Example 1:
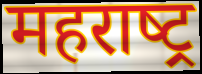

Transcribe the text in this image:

महराष्‍ट्र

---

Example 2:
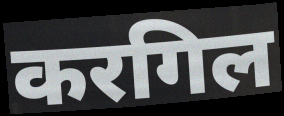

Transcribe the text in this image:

करगिल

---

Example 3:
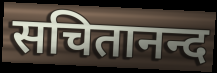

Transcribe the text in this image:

सचितानन्द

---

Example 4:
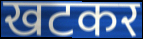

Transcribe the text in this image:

खटकर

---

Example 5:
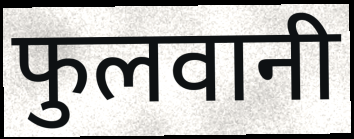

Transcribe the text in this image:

फुलवानी